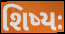
શિષ્યઃ